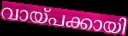
വായ്പക്കായി